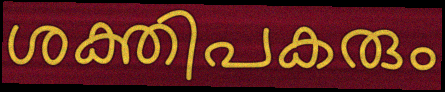
ശക്തിപകരും